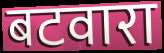
बटवारा